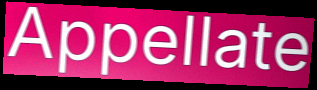
Appellate